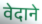
वेदाने